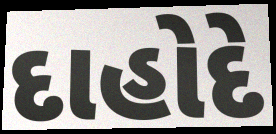
દાહોદે